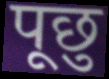
पूछु